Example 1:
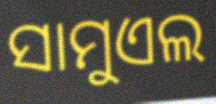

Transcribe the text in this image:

ସାମୁଏଲ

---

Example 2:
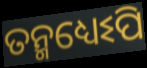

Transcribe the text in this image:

ତନ୍ମଧ୍ୟେଽପି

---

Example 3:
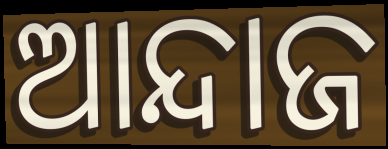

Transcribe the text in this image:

ଆନ୍ଦାଜ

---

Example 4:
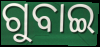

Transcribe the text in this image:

ଗୁବାଇ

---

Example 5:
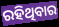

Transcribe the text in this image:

ରହିଥିବାର